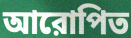
আরোপিত